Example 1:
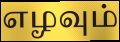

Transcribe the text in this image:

எழவும்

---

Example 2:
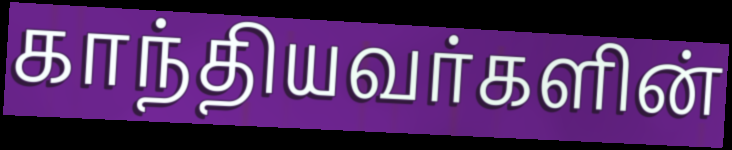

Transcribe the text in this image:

காந்தியவர்களின்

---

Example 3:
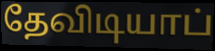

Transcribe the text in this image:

தேவிடியாப்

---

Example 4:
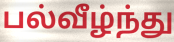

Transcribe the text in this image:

பல்வீழ்ந்து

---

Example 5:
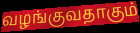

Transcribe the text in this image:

வழங்குவதாகும்